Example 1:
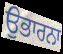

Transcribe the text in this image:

ਉਭਾਰਨਾ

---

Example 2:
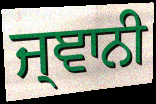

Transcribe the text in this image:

ਜ੍ਞਾਨੀ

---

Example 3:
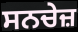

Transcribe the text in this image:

ਸਨਚੇਜ਼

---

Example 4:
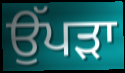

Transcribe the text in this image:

ਉੱਪੜਾ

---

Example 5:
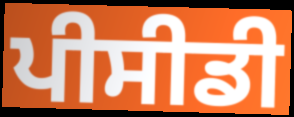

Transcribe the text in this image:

ਪੀਸੀਡੀ